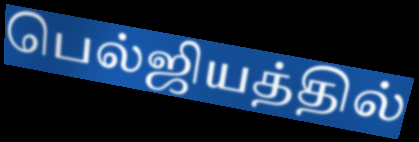
பெல்ஜியத்தில்